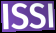
ISSI